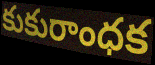
కుకురాంధక